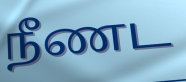
நீணட